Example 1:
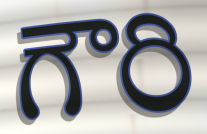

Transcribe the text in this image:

గౌరి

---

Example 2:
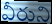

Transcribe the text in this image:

వీరుని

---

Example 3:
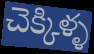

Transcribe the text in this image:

చెక్కిళ్ళ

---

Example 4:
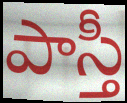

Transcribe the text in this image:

పాస్తీ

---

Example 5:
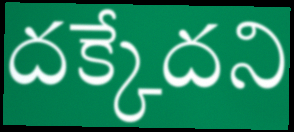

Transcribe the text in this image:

దక్కేదని